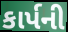
કાર્પની